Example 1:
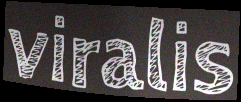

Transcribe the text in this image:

viralis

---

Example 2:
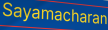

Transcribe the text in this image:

Sayamacharan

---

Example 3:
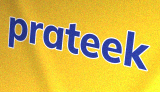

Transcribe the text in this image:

prateek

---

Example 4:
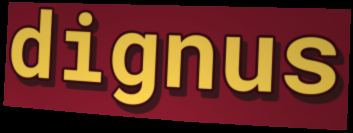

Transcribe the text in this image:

dignus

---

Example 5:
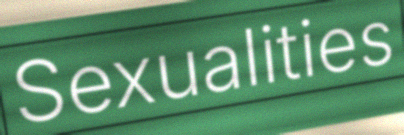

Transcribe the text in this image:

Sexualities